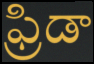
ఫ్రిడా